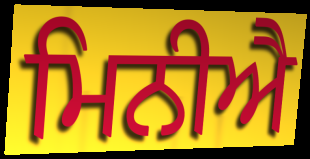
ਮਿਨੀਐ